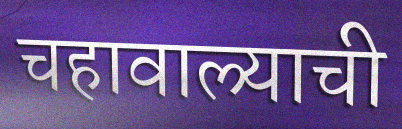
चहावाल्याची